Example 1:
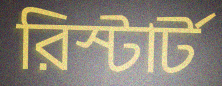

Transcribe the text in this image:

রিস্টার্ট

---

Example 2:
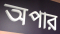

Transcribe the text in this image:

অপার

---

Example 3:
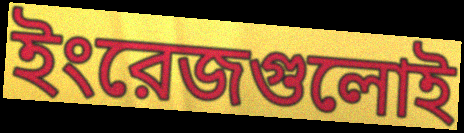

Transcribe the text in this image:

ইংরেজগুলোই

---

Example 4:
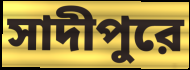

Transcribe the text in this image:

সাদীপুরে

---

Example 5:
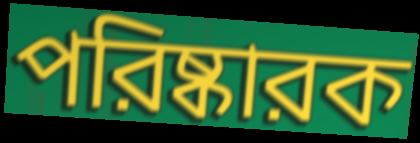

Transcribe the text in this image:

পরিষ্কারক